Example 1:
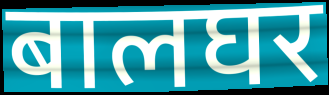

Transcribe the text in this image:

बालघर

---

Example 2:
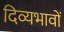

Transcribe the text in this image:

दिव्यभावों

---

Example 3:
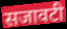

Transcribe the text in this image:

सजावटी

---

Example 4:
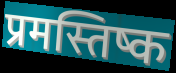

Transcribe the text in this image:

प्रमस्तिष्क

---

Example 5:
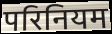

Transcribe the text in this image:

परिनियम